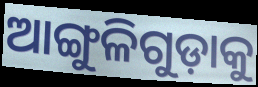
ଆଙ୍ଗୁଳିଗୁଡ଼ାକୁ